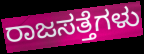
ರಾಜಸತ್ತೆಗಳು